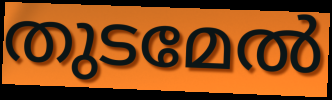
തുടമേൽ